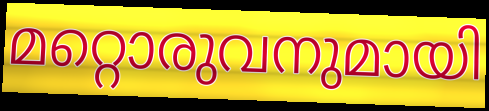
മറ്റൊരുവനുമായി